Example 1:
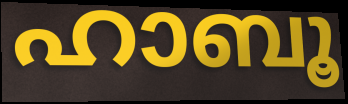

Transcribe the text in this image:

ഹാബൂ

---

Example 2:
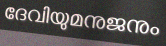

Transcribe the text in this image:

ദേവിയുമനുജനും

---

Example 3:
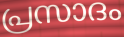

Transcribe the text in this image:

പ്രസാദം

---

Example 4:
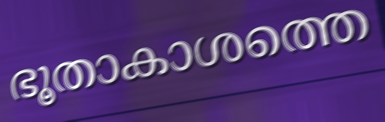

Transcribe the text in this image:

ഭൂതാകാശത്തെ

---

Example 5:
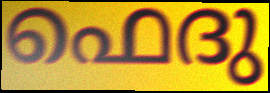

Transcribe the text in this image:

ഫെദു